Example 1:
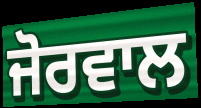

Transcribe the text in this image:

ਜੋਰਵਾਲ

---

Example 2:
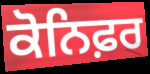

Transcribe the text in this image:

ਕੋਨਿਫ਼ਰ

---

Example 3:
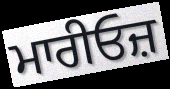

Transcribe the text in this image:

ਮਾਰੀਓਜ਼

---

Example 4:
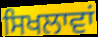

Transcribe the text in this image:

ਸਿਖਲਾਵਾਂ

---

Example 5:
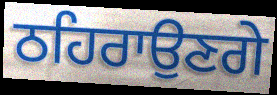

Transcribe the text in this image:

ਠਹਿਰਾਉਣਗੇ